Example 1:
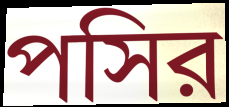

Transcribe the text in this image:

পসির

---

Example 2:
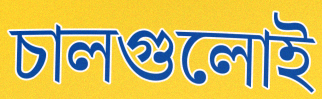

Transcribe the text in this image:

চালগুলোই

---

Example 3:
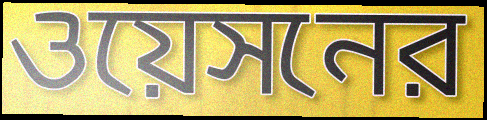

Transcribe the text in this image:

ওয়েসনের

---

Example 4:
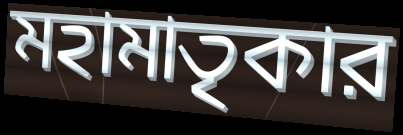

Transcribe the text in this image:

মহামাতৃকার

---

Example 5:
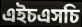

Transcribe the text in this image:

এইচএসচি